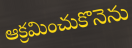
ఆక్రమించుకొనెను